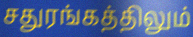
சதுரங்கத்திலும்